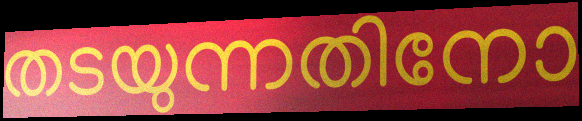
തടയുന്നതിനോ